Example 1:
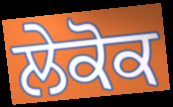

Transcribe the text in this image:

ਲੇਕੋਕ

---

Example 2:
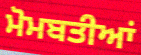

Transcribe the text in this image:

ਮੋਮਬਤੀਆਂ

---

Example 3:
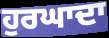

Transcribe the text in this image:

ਹੁਰਘਾਦਾ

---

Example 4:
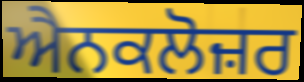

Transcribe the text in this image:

ਐਨਕਲੋਜ਼ਰ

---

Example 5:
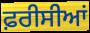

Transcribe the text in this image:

ਫ਼ਰੀਸੀਆਂ